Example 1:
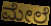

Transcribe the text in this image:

ಮೇಲೆ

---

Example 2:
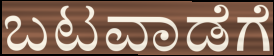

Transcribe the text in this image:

ಬಟವಾಡೆಗೆ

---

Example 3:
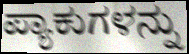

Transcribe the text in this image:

ಪ್ಯಾಕುಗಳನ್ನು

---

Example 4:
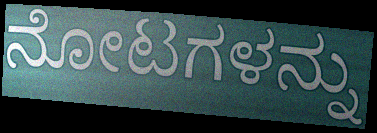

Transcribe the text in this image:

ನೋಟಗಳನ್ನು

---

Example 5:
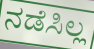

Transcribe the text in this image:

ನಡೆಸಿಲ್ಲ